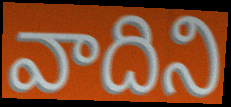
వాదిని